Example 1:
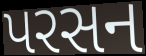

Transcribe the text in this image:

પરસન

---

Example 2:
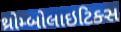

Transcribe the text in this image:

થ્રોમ્બોલાઇટિક્સ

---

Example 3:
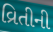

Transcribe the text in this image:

વ્રિતીની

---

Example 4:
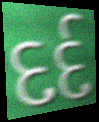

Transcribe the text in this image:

દર્દ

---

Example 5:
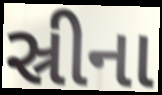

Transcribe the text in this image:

સ્રીના